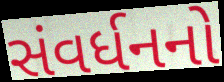
સંવર્ધનનો